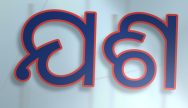
ଯଶ